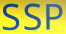
SSP